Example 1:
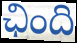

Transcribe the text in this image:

ఛింది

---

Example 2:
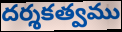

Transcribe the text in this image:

దర్శకత్వము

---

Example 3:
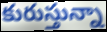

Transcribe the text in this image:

కురుస్తున్నా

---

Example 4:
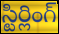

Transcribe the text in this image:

స్టిర్లింగ్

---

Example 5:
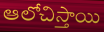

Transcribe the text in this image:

ఆలోచిస్తాయి